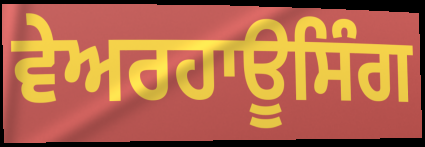
ਵੇਅਰਹਾਊਸਿੰਗ